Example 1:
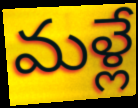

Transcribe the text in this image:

మళ్లే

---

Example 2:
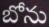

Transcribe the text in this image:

బోను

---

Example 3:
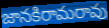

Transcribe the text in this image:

జానకిరామరావు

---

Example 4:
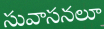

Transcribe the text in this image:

సువాసనలూ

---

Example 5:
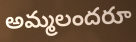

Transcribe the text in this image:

అమ్మలందరూ